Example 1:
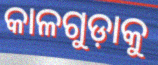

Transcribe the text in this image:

କାଳଗୁଡ଼ାକୁ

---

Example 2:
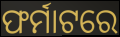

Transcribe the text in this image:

ଫର୍ମାଟରେ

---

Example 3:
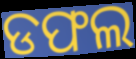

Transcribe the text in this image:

ଡଫଲ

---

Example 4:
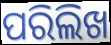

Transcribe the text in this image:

ପରିଲିଖ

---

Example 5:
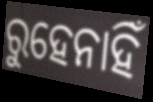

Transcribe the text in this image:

ରୁହେନାହିଁ